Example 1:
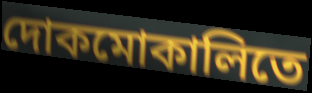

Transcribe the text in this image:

দোকমোকালিতে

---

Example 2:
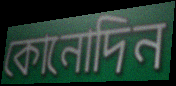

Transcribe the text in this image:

কোনোদিন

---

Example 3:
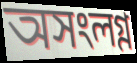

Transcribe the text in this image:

অসংলগ্ন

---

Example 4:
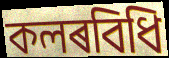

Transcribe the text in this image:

কলৰবিধি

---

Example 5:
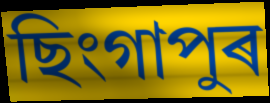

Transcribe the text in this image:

ছিংগাপুৰ